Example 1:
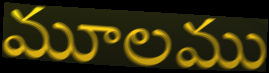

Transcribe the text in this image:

మూలము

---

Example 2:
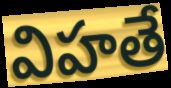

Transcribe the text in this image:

విహతే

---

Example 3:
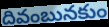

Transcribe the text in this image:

దివంబునకుం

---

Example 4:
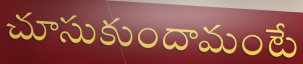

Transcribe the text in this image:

చూసుకుందామంటే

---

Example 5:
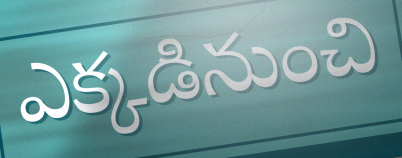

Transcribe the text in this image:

ఎక్కడినుంచి